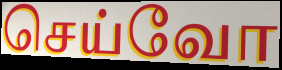
செய்வோ